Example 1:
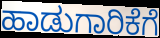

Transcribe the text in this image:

ಹಾಡುಗಾರಿಕೆಗೆ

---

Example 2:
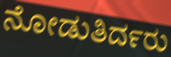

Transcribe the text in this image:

ನೋಡುತಿರ್ದರು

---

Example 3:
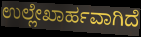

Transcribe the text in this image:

ಉಲ್ಲೇಖಾರ್ಹವಾಗಿದೆ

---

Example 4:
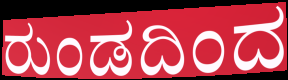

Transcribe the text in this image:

ರುಂಡದಿಂದ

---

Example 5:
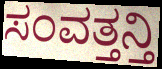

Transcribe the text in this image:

ಸಂವತ್ತನ್ತಿ